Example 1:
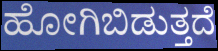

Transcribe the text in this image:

ಹೋಗಿಬಿಡುತ್ತದೆ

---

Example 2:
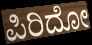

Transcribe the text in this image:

ಪಿರಿದೋ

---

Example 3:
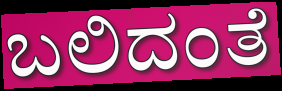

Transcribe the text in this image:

ಬಲಿದಂತೆ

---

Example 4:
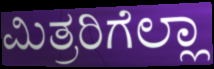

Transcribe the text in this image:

ಮಿತ್ರರಿಗೆಲ್ಲಾ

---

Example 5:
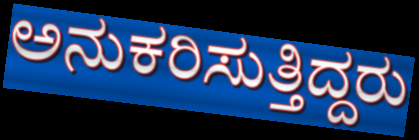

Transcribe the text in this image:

ಅನುಕರಿಸುತ್ತಿದ್ದರು